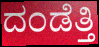
ದಂಡೆತ್ತಿ